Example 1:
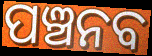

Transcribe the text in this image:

ପଞ୍ଚନବ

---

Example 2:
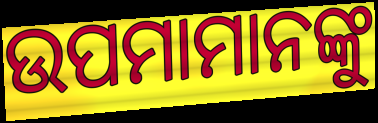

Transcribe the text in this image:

ଉପମାମାନଙ୍କୁ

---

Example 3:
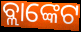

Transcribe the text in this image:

ବ୍ଲାଙ୍କେଟ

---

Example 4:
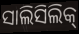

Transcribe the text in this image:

ସାଲିସିଲିକ୍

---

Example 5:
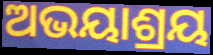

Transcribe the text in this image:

ଅଭୟାଶ୍ରୟ